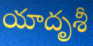
యాదృశీ